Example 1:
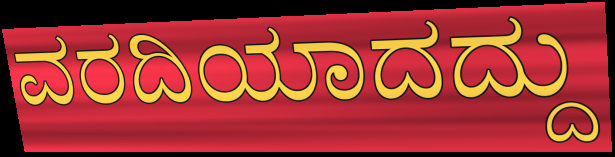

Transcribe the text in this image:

ವರದಿಯಾದದ್ದು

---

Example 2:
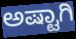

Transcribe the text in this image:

ಅಷ್ಟಾಗಿ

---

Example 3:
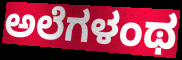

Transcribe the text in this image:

ಅಲೆಗಳಂಥ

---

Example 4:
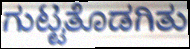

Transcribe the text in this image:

ಗುಟ್ಟತೊಡಗಿತು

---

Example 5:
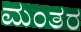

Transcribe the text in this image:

ಮಂತರ